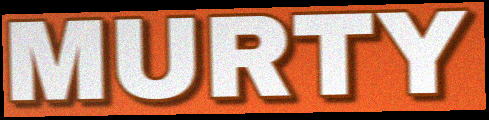
MURTY